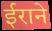
ईराने